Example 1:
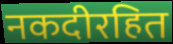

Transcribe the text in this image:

नकदीरहित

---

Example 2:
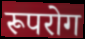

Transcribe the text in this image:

रूपरोग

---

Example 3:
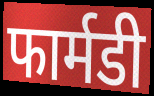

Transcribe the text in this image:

फार्मडी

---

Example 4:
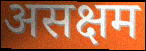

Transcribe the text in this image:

असक्षम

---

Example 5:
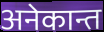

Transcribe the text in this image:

अनेकान्त